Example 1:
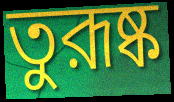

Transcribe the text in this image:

তুরূষ্ক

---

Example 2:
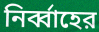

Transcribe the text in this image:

নির্ব্বাহের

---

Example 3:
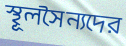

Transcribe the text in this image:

স্থূলসৈন্যদের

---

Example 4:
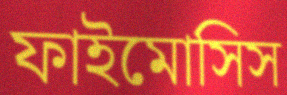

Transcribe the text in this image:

ফাইমোসিস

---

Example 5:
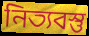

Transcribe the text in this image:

নিত্যবস্তু